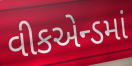
વીકએન્ડમાં